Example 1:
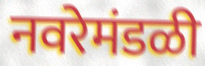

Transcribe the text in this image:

नवरेमंडळी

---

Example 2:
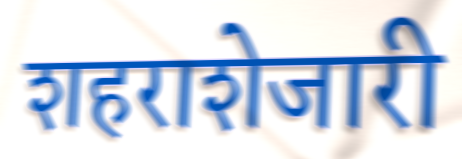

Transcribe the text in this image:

शहराशेजारी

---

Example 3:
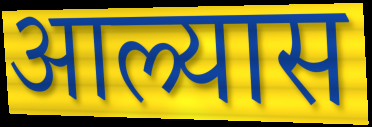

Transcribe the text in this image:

आल्यास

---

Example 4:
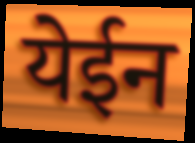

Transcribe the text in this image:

येईन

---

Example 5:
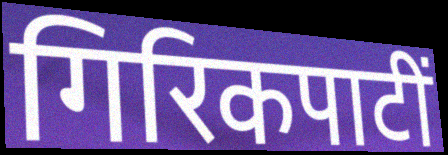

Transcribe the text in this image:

गिरिकपाटीं